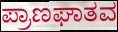
ಪ್ರಾಣಘಾತವ